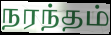
நரந்தம்